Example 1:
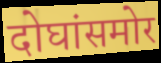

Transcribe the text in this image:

दोघांसमोर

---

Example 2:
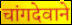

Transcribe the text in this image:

चांगदेवाने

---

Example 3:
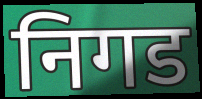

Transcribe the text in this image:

निगड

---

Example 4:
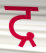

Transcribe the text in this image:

द्र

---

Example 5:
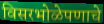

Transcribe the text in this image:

विसरभोळेपणाचे